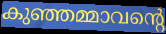
കുഞ്ഞമ്മാവന്റെ